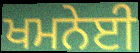
ਖਮਨੇਈ